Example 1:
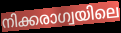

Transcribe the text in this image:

നിക്കരാഗ്വയിലെ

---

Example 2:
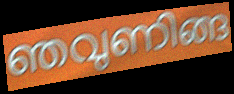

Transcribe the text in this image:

ഞവുണിങ്ങ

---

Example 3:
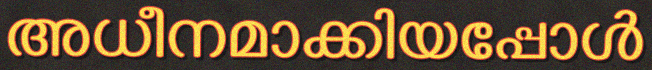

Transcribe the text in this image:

അധീനമാക്കിയപ്പോൾ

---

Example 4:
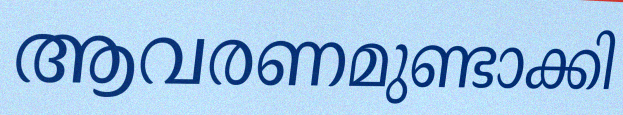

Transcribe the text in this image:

ആവരണമുണ്ടാക്കി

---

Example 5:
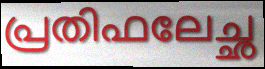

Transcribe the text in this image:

പ്രതിഫലേച്ഛ